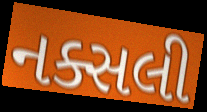
નક્સલી